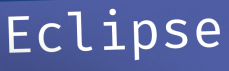
Eclipse